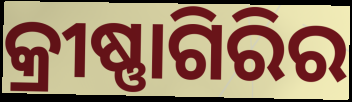
କ୍ରୀଷ୍ଣାଗିରିର